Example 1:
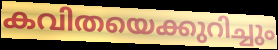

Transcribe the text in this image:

കവിതയെക്കുറിച്ചും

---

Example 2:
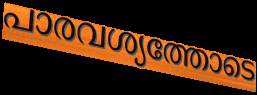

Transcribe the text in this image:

പാരവശ്യത്തോടെ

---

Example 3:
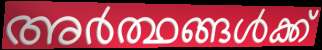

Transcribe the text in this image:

അർത്ഥങ്ങൾക്ക്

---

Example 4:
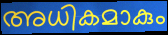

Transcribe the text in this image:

അധികമാകും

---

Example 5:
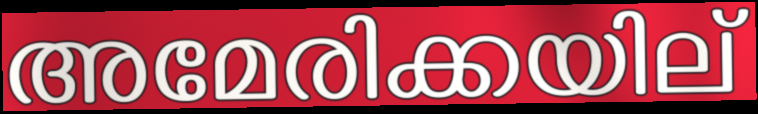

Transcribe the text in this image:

അമേരിക്കയില്